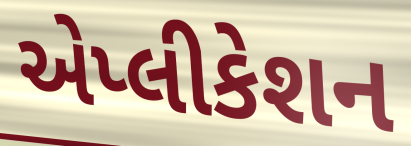
એપ્લીકેશન